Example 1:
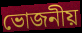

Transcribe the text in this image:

ভোজনীয়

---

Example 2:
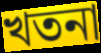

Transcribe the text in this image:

খতনা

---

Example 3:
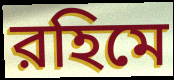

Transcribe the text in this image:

রহিমে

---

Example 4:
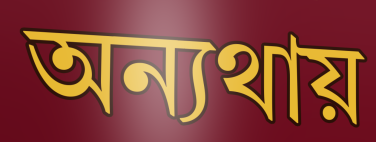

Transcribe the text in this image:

অন্যথায়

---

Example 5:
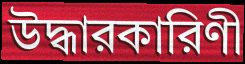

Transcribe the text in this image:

উদ্ধারকারিণী